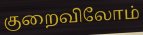
குறைவிலோம்